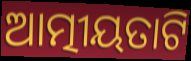
ଆତ୍ମୀୟତାଟି